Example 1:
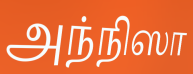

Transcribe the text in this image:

அந்நிஸா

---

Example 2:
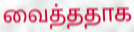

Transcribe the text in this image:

வைத்ததாக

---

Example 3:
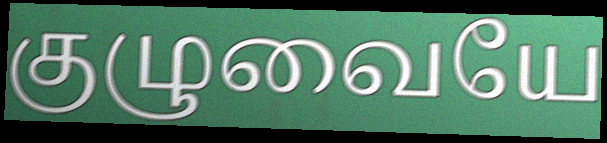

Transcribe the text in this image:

குழுவையே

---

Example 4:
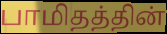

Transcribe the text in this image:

பாமிதத்தின்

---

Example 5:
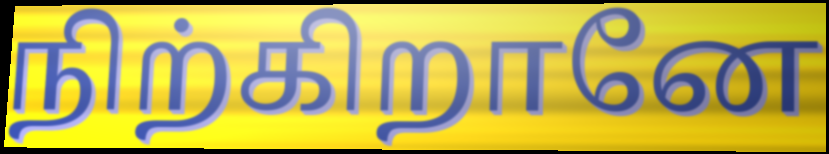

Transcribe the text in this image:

நிற்கிறானே